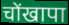
चोंखापा